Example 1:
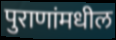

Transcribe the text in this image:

पुराणांमधील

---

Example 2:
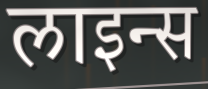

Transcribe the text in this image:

लाइन्स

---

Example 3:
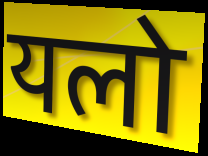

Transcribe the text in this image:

यलो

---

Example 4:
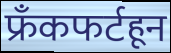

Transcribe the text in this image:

फ्रँकफर्टहून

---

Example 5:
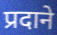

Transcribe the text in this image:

प्रदाने